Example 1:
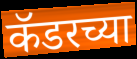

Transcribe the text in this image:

कॅडरच्या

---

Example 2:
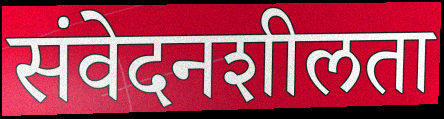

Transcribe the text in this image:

संवेदनशीलता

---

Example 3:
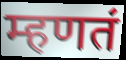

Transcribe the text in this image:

म्हणतं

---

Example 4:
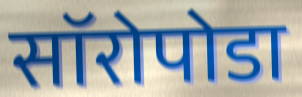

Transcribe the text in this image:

सॉरोपोडा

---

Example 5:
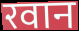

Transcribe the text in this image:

रवान